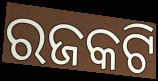
ରଜକଟି